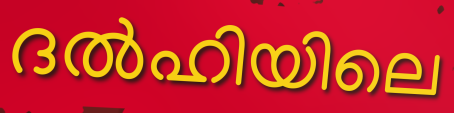
ദൽഹിയിലെ